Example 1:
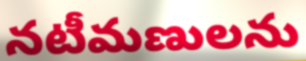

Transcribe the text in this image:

నటీమణులను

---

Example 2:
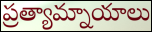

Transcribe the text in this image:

ప్రత్యామ్నాయాలు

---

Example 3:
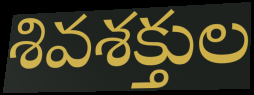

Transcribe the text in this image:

శివశక్తుల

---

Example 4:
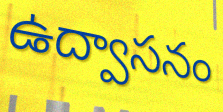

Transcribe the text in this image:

ఉద్వాసనం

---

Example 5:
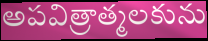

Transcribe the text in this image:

అపవిత్రాత్మలకును